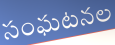
సంఘటనల